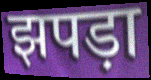
झपड़ा